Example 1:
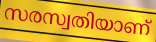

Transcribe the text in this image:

സരസ്വതിയാണ്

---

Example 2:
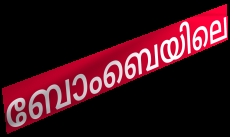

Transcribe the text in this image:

ബോംബെയിലെ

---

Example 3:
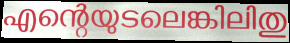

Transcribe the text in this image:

എന്റെയുടലെങ്കിലിതു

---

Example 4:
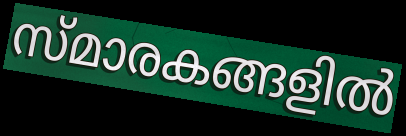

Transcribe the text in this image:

സ്മാരകങ്ങളിൽ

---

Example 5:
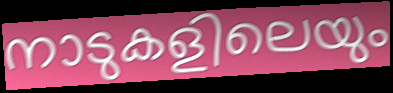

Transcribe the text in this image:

നാടുകളിലെയും